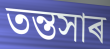
তন্তসাৰ